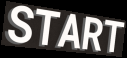
START